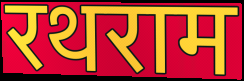
रथराम